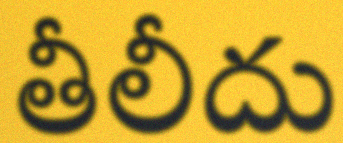
తీలీదు